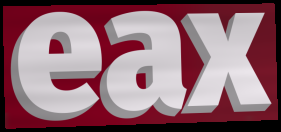
eax